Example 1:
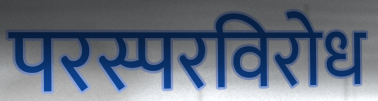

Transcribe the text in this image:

परस्परविरोध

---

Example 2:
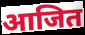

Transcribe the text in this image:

आजित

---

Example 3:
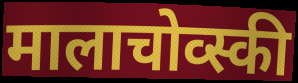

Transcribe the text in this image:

मालाचोव्स्की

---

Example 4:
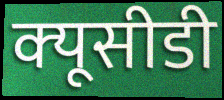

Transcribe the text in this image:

क्यूसीडी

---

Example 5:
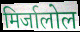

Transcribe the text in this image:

मिर्जालोल